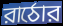
রাঠোর